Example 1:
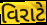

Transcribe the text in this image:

વિરાટે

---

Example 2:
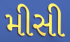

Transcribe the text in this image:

મીસી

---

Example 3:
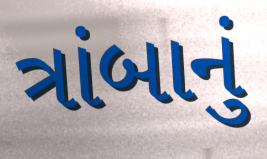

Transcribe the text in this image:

ત્રાંબાનું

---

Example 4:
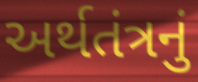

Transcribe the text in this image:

અર્થતંત્રનું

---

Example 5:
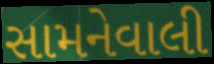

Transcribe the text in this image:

સામનેવાલી